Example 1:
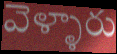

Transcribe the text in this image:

వెళ్ళారు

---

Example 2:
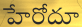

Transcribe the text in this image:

హేరోదూ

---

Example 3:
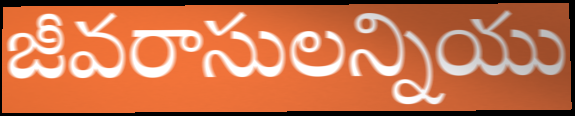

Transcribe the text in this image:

జీవరాసులన్నియు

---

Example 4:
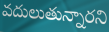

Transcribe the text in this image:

వదులుతున్నారని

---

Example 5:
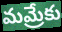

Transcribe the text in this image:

మమ్రేకు